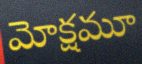
మోక్షమూ